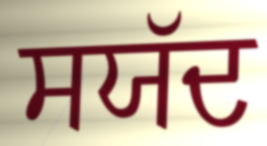
ਸਯੱਦ